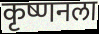
कृष्णनला